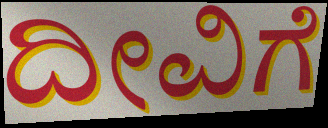
ದೀವಿಗೆ